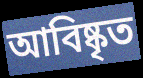
আবিষ্কৃত